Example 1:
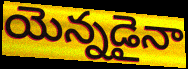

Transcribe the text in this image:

యెన్నడైనా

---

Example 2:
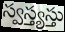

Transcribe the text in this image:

స్వస్త్యస్తు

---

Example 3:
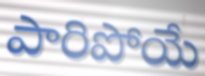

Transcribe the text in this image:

పారిపోయే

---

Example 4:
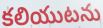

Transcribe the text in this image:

కలియుటను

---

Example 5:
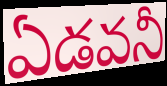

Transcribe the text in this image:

ఏడవనీ